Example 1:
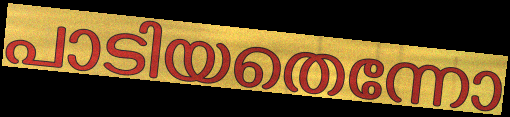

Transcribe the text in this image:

പാടിയതെന്നോ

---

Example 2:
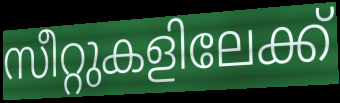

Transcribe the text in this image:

സീറ്റുകളിലേക്ക്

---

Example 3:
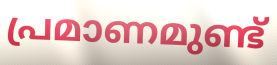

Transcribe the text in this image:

പ്രമാണമുണ്ട്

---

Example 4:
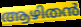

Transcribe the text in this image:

ആഴിതൻ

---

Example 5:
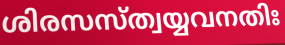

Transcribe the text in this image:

ശിരസസ്ത്വയ്യവനതിഃ